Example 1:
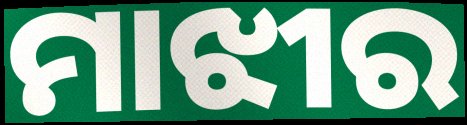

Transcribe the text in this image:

ମାଝୀର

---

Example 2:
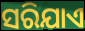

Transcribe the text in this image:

ସରିଯାଏ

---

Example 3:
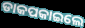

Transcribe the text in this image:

ଡାକପକାଇଲେ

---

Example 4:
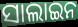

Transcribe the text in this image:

ସାଲାଇନ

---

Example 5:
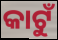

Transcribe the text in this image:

କାଟୁଁ